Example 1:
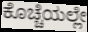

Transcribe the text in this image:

ಕೊಚ್ಚೆಯಲ್ಲೇ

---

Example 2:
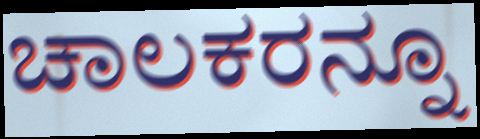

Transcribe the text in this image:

ಚಾಲಕರನ್ನೂ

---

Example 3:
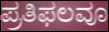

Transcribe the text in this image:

ಪ್ರತಿಫಲವೂ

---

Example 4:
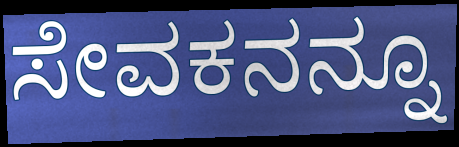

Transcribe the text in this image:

ಸೇವಕನನ್ನೂ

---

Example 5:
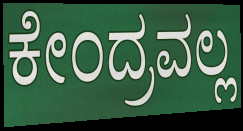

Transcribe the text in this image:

ಕೇಂದ್ರವಲ್ಲ